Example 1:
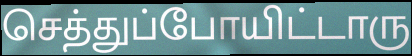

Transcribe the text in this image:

செத்துப்போயிட்டாரு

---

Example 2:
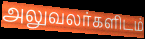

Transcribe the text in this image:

அலுவலர்களிடம்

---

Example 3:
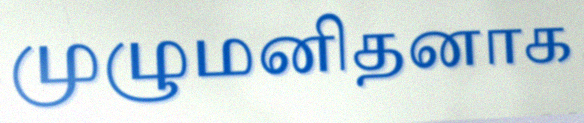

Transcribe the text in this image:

முழுமனிதனாக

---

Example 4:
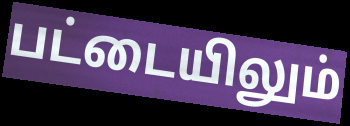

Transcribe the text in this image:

பட்டையிலும்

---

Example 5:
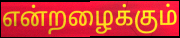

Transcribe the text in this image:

என்றழைக்கும்